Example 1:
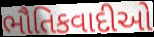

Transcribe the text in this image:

ભૌતિકવાદીઓ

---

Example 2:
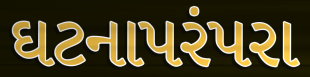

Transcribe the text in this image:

ઘટનાપરંપરા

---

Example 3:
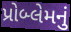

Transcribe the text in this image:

પ્રોબ્લેમનું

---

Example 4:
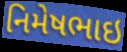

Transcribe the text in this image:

નિમેષભાઇ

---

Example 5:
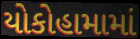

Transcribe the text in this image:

યોકોહામામાં